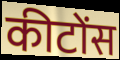
कीटोंस